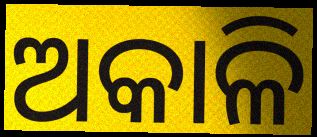
ଅକାଳି